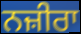
ਨਜ਼ੀਰਾ